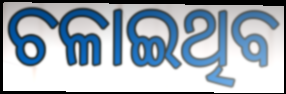
ଚଳାଇଥିବ